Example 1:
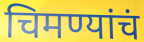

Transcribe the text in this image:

चिमण्यांचं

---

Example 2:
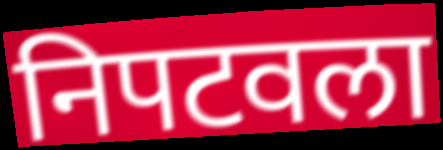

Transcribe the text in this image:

निपटवला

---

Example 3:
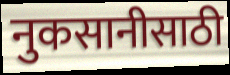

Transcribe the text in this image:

नुकसानीसाठी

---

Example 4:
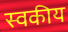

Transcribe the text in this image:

स्वकीय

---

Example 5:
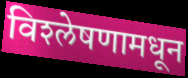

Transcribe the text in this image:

विश्लेषणामधून